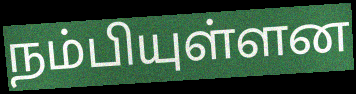
நம்பியுள்ளன